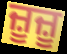
ਜ਼ੂਜ਼ੂ